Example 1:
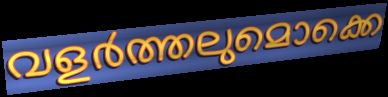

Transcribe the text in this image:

വളർത്തലുമൊക്കെ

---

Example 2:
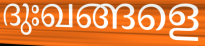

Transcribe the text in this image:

ദുഃഖങ്ങളെ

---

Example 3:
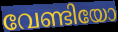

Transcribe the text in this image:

വേണ്ടിയോ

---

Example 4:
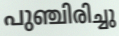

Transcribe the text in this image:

പുഞ്ചിരിച്ചു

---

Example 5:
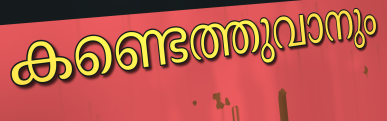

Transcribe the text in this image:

കണ്ടെത്തുവാനും